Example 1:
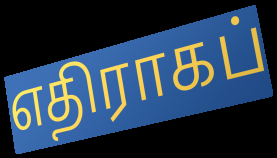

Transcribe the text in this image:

எதிராகப்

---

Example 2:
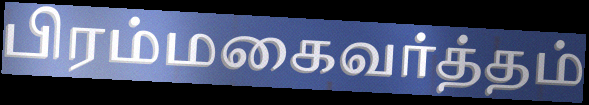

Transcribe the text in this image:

பிரம்மகைவர்த்தம்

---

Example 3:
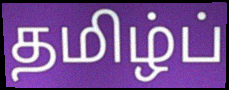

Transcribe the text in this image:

தமிழ்ப்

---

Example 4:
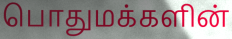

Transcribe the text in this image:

பொதுமக்களின்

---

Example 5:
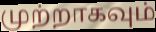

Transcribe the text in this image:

முற்றாகவும்